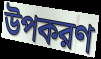
উপকরণ